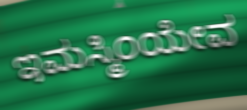
ಇಮಸ್ಮಿಂಯೇವ